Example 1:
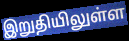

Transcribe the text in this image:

இறுதியிலுள்ள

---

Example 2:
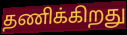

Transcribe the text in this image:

தணிக்கிறது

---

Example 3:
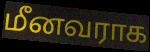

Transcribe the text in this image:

மீனவராக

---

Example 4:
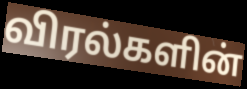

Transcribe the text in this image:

விரல்களின்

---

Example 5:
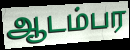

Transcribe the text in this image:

ஆடம்பர